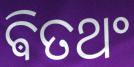
ଵିତଥଂ